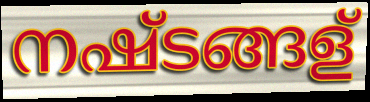
നഷ്ടങ്ങള്